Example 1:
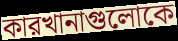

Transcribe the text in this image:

কারখানাগুলোকে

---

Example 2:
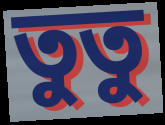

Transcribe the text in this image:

তুতু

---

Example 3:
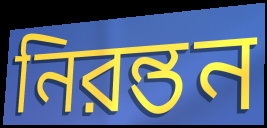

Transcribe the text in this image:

নিরন্তন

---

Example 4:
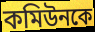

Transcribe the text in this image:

কমিউনকে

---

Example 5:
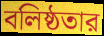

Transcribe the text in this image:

বলিষ্ঠতার